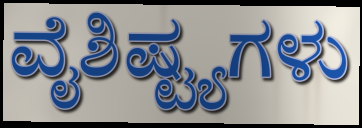
ವೈಶಿಷ್ಟ್ಯಗಳು